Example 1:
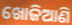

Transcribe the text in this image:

ଖୋଜିଆଣି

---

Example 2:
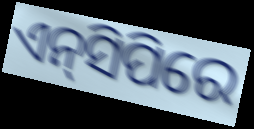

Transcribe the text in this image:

ଏନ୍‌ସିପିରେ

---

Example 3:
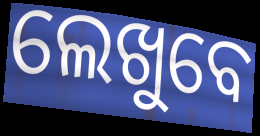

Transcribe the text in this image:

ଲେଖୁବେ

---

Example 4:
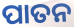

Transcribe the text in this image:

ପାତନ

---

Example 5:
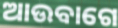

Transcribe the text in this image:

ଆଉବାଗେ